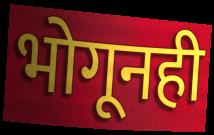
भोगूनही